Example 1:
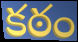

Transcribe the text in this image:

కఠం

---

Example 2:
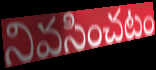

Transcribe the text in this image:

నివసించటం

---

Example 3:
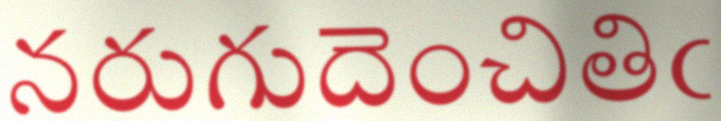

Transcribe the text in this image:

నరుగుదెంచితిఁ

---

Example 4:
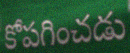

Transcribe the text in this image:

కోపగించడు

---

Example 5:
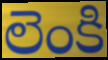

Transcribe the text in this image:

లెంకి